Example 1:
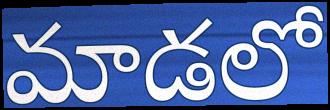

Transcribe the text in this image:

మాడలో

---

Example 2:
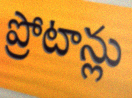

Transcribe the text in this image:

ప్రోటాన్లు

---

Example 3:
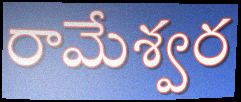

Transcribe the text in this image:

రామేశ్వర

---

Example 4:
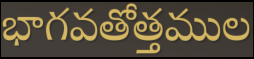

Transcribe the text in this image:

భాగవతోత్తముల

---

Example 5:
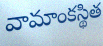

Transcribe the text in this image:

వామాంకస్థిత